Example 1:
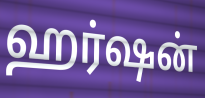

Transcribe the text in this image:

ஹர்ஷன்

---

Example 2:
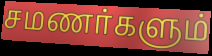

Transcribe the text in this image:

சமணர்களும்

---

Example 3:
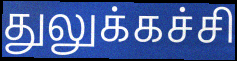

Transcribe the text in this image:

துலுக்கச்சி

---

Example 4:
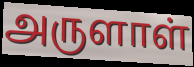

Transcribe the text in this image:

அருளாள்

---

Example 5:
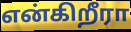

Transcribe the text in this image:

என்கிறீரா